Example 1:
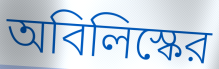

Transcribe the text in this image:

অবিলিস্কের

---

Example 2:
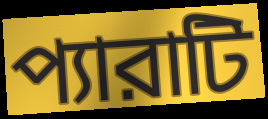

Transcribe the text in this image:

প্যারাটি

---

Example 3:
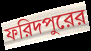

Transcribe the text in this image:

ফরিদপুরের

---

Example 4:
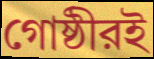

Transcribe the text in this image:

গোষ্ঠীরই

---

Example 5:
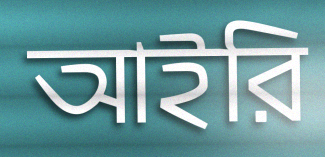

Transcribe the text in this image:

আইরি